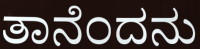
ತಾನೆಂದನು